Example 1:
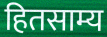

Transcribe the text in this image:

हितसाम्य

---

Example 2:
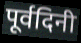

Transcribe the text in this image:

पूर्वदिनी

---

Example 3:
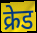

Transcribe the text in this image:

क्रेड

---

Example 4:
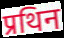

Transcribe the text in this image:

प्रथिन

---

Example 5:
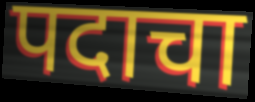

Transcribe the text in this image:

पदाचा